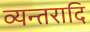
व्यन्तरादि